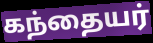
கந்தையர்